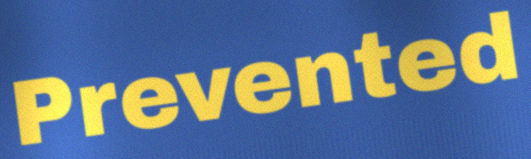
Prevented